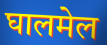
घालमेल